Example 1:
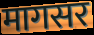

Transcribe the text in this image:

मागसर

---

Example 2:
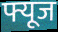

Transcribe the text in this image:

फ्यूज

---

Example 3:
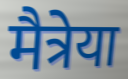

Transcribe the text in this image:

मैत्रेया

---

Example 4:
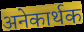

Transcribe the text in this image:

अनेकार्थक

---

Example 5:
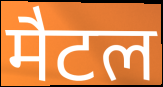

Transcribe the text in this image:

मैटल